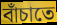
বাঁচাতে